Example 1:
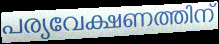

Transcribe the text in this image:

പര്യവേക്ഷണത്തിന്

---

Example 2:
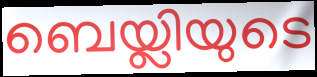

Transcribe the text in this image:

ബെയ്ലിയുടെ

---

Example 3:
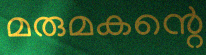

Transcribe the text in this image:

മരുമകന്റെ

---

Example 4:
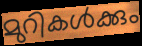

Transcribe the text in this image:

മുറികൾക്കും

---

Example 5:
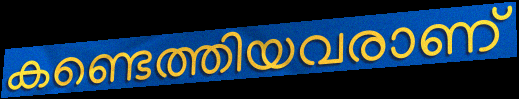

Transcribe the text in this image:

കണ്ടെത്തിയവരാണ്